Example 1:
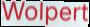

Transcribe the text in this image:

Wolpert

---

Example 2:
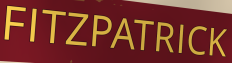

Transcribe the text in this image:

FITZPATRICK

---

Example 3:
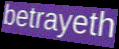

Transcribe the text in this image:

betrayeth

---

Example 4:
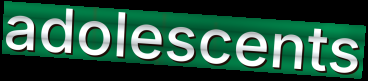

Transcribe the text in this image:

adolescents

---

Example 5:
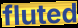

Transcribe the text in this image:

fluted